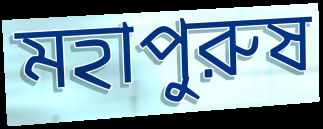
মহাপুৰুষ